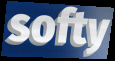
softy